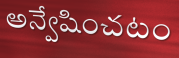
అన్వేషించటం